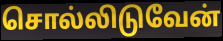
சொல்லிடுவேன்